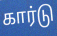
கார்டு